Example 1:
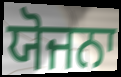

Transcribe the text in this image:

ਯੋਜਨਾ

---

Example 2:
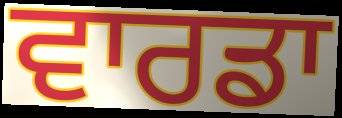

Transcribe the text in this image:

ਵਾਰਡਾ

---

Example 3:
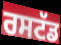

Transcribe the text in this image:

ਰਸਟੱਡ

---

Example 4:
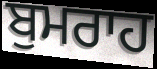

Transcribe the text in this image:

ਬੁਮਰਾਹ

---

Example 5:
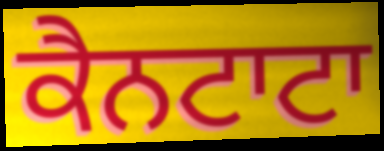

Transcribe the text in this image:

ਕੈਨਟਾਟਾ